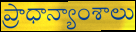
ప్రాధాన్యాంశాలు